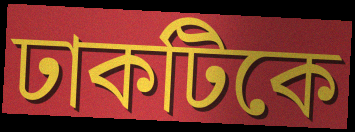
ঢাকটিকে